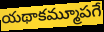
యథాకమ్మూపగే